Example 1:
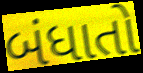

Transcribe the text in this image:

બંધાતો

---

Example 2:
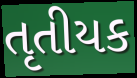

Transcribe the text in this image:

તૃતીયક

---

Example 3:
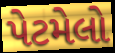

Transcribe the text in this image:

પેટમેલો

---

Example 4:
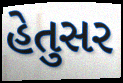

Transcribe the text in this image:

હેતુસર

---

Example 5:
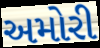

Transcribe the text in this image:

અમોરી